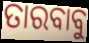
ତାରବାବୁ